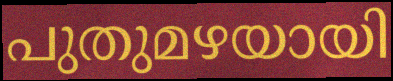
പുതുമഴയായി